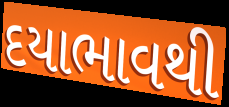
દયાભાવથી